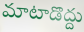
మాటాడొద్దు